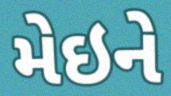
મેઇને